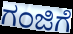
ಗಂಜಿಗೆ